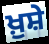
ਖ਼ੁਸ਼ੇ